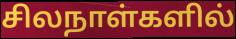
சிலநாள்களில்